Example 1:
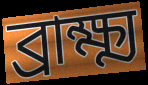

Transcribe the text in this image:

ব্রাক্ষ্ম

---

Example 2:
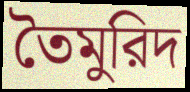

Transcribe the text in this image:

তৈমুরিদ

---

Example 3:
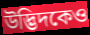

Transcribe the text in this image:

উদ্ভিদকেও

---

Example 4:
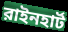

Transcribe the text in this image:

রাইনহার্ট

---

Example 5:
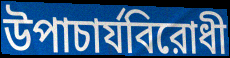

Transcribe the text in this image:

উপাচার্যবিরোধী